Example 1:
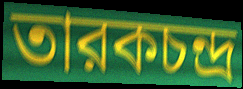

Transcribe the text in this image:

তারকচন্দ্র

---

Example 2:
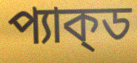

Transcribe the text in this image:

প্যাক্‌ড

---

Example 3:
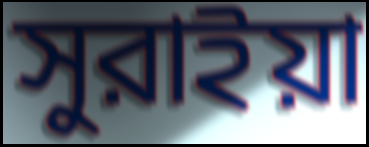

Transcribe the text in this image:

সুরাইয়া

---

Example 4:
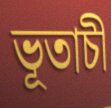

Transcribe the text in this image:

ভূতাচী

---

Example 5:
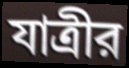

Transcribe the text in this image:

যাত্রীর